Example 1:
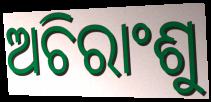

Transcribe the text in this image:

ଅଚିରାଂଶୁ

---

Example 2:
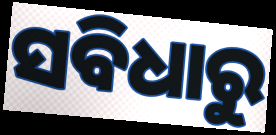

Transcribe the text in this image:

ସବିଧାରୁ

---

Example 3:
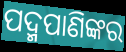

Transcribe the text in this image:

ପଦ୍ମପାଣିଙ୍କର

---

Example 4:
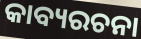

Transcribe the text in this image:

କାବ୍ୟରଚନା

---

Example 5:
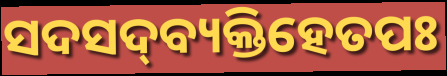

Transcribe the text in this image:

ସଦସଦ୍‌ବ୍ୟକ୍ତିହେତପଃ